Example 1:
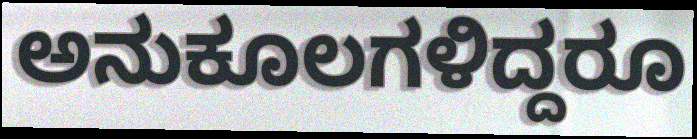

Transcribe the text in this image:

ಅನುಕೂಲಗಳಿದ್ದರೂ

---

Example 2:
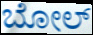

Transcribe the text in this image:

ಬೋಲ್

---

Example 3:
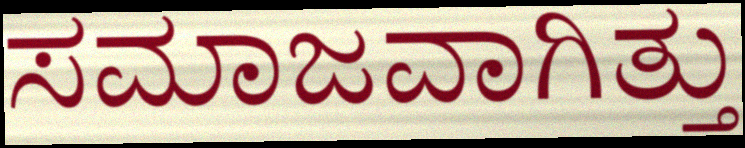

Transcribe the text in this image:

ಸಮಾಜವಾಗಿತ್ತು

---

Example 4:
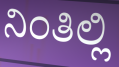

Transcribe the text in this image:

ನಿಂತಿಲ್ಲಿ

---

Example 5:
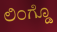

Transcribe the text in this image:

ಲಿಂಗ್ಡೊ